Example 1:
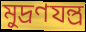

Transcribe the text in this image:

মুদ্রণযন্ত্র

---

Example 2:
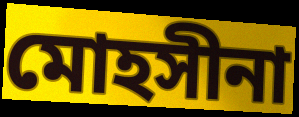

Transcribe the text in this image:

মোহসীনা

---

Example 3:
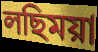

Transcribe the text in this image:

লছিময়া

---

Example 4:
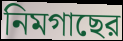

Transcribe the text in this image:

নিমগাছের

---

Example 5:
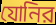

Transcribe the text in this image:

যোনির